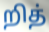
றித்